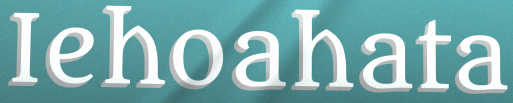
Iehoahata